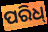
ପରିଧ୍